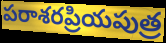
పరాశరప్రియపుత్ర